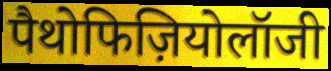
पैथोफिज़ियोलॉजी